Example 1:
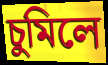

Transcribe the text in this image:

চুমিলে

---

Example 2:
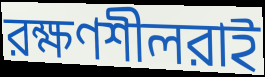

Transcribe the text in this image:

রক্ষণশীলরাই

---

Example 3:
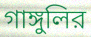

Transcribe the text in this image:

গাঙ্গুলির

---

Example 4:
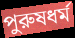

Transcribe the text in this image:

পুরুষধর্ম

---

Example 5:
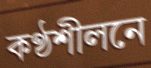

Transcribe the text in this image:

কণ্ঠশীলনে